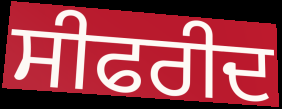
ਸੀਫਰੀਦ